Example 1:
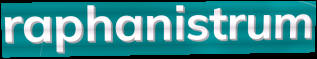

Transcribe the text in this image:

raphanistrum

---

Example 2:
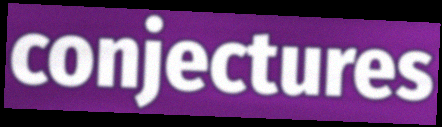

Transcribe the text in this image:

conjectures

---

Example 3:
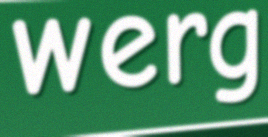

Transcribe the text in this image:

werg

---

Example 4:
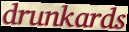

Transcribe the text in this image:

drunkards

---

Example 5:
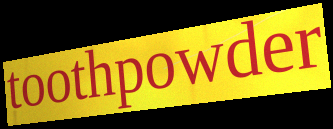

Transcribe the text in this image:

toothpowder